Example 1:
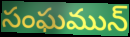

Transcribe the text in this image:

సంఘమున్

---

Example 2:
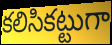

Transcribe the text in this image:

కలిసికట్టుగా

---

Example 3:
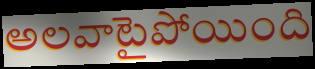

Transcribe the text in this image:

అలవాటైపోయింది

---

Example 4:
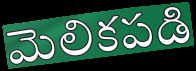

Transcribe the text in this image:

మెలికపడి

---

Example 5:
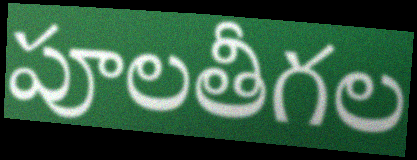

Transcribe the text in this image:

పూలతీగల